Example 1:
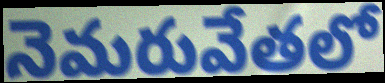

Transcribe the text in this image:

నెమరువేతలో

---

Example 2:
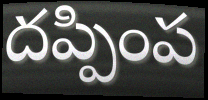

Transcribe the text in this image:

దప్పింప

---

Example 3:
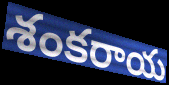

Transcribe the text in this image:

శంకరాయ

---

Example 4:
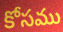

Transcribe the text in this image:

కోసము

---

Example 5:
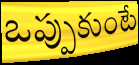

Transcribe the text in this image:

ఒప్పుకుంటే